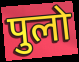
पुलो